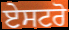
ਏਸਟਰੋ